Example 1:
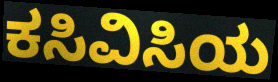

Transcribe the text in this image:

ಕಸಿವಿಸಿಯ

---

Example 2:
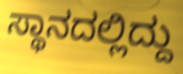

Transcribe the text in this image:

ಸ್ಥಾನದಲ್ಲಿದ್ದು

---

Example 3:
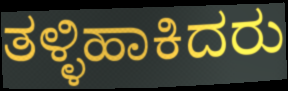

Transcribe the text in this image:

ತಳ್ಳಿಹಾಕಿದರು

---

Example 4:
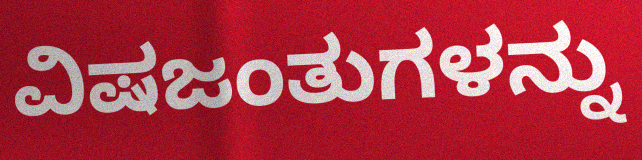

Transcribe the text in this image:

ವಿಷಜಂತುಗಳನ್ನು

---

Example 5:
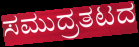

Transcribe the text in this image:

ಸಮುದ್ರತಟದ